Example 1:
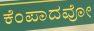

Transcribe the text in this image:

ಕೆಂಪಾದವೋ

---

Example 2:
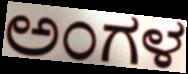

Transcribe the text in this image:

ಅಂಗಳ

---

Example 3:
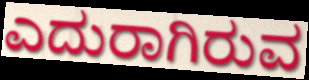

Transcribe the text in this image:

ಎದುರಾಗಿರುವ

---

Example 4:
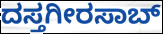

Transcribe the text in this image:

ದಸ್ತಗೀರಸಾಬ್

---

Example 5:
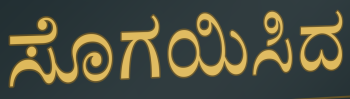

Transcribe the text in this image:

ಸೊಗಯಿಸಿದ